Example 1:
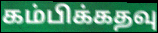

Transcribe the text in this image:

கம்பிக்கதவு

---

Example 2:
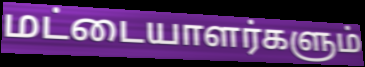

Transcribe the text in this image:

மட்டையாளர்களும்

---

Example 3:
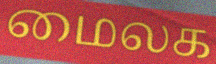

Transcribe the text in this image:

மைலக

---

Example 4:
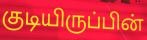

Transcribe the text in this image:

குடியிருப்பின்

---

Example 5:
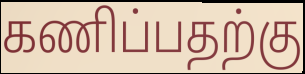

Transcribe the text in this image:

கணிப்பதற்கு